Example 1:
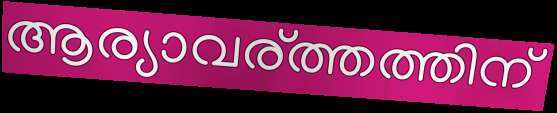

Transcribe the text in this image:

ആര്യാവര്ത്തത്തിന്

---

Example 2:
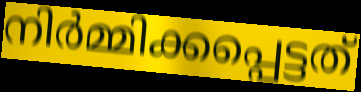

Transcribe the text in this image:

നിർമ്മിക്കപ്പെട്ടത്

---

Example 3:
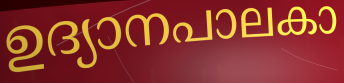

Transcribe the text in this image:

ഉദ്യാനപാലകാ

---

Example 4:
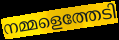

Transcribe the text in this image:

നമ്മളെത്തേടി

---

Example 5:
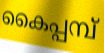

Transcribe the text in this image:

കൈപ്പമ്പ്